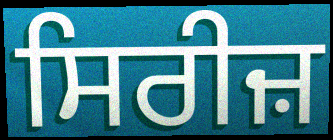
ਸਿਰੀਜ਼